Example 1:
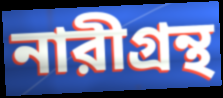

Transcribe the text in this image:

নারীগ্রন্থ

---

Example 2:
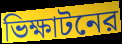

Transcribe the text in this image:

ভিক্ষাটনের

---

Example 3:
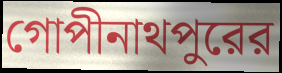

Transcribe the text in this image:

গোপীনাথপুরের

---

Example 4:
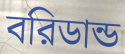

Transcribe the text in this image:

বরিডান্ড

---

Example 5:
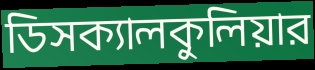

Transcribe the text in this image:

ডিসক্যালকুলিয়ার